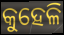
କୁହେଳି